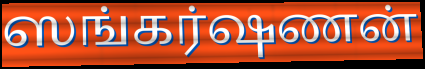
ஸங்கர்ஷணன்